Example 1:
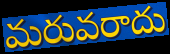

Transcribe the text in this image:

మరువరాదు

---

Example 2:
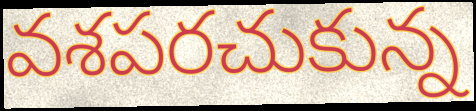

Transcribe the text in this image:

వశపరచుకున్న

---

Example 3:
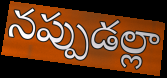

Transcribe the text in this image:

నప్పుడల్లా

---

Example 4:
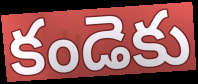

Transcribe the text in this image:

కండెకు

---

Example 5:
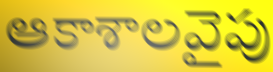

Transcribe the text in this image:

ఆకాశాలవైపు